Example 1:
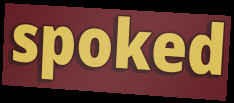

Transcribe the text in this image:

spoked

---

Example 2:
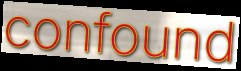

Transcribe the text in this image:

confound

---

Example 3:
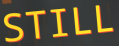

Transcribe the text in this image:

STILL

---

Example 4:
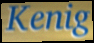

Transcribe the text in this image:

Kenig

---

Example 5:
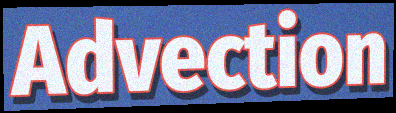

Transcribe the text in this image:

Advection